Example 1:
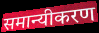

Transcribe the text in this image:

समान्यीकरण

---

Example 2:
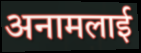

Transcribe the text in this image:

अनामलाई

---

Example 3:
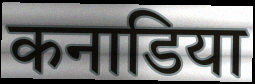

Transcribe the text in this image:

कनाडिया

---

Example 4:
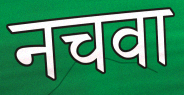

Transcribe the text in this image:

नचवा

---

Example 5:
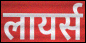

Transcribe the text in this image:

लायर्स